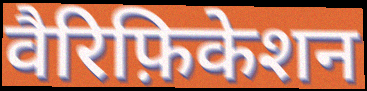
वैरिफ़िकेशन